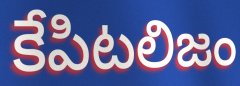
కేపిటలిజం